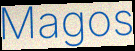
Magos